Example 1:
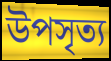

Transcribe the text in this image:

উপসৃত্য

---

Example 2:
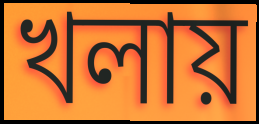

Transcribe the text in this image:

খলায়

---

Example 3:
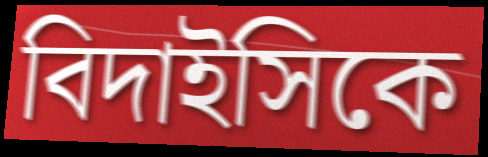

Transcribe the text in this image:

বিদাইসিকে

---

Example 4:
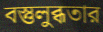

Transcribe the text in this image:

বস্তুলুব্ধতার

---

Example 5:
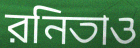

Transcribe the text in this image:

রনিতাও